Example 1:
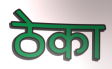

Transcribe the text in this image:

ठेका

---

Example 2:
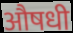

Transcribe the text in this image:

औषधी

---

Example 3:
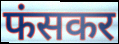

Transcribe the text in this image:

फंसकर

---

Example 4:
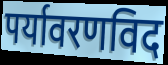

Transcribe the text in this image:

पर्यावरणविद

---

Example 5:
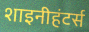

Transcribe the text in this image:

शाइनीहंटर्स